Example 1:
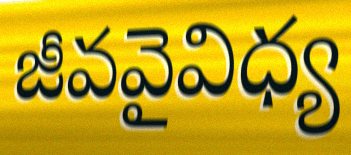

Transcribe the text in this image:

జీవవైవిధ్య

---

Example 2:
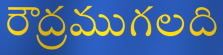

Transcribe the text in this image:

రౌద్రముగలది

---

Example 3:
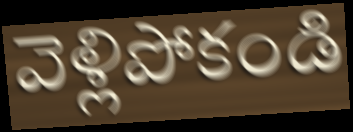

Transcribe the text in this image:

వెళ్లిపోకండి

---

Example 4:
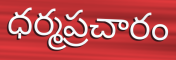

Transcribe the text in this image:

ధర్మప్రచారం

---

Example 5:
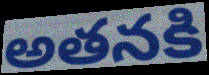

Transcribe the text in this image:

అతనకి